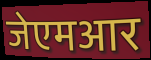
जेएमआर